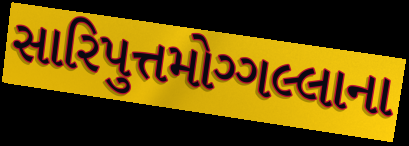
સારિપુત્તમોગ્ગલ્લાના